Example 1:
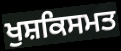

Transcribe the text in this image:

ਖੁਸ਼ਕਿਸਮਤ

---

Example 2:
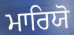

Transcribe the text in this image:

ਮਾਰਿਯੋ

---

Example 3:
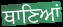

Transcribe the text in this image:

ਥਾਣਿਆਂ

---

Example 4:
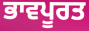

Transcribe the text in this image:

ਭਾਵਪੂਰਤ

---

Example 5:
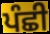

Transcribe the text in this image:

ਪੰਛੀ